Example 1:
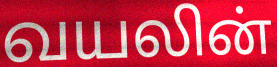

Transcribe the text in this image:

வயலின்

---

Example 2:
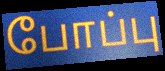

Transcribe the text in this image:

போப்பு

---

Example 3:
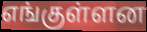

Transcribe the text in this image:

எங்குள்ளன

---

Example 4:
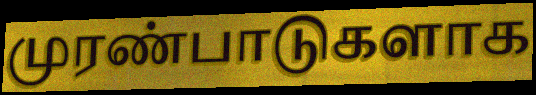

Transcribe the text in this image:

முரண்பாடுகளாக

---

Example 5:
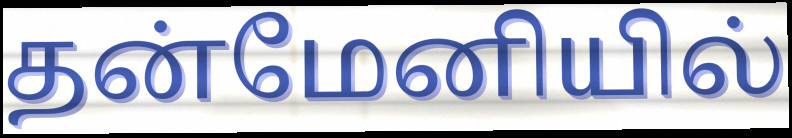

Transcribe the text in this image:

தன்மேனியில்